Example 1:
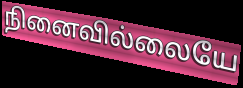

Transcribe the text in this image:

நினைவில்லையே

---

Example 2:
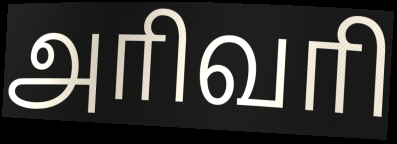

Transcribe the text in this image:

அரிவரி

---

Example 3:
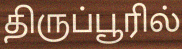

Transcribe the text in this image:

திருப்பூரில்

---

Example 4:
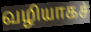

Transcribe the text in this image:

வழியாகச்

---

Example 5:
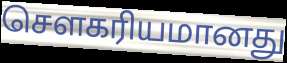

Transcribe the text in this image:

சௌகரியமானது